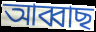
আব্বাছ